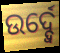
ଉର୍ଦ୍ଦ୍ୱେ